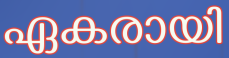
ഏകരായി